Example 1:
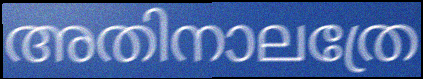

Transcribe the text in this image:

അതിനാലത്രേ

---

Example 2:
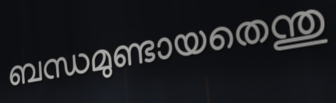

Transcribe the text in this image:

ബന്ധമുണ്ടായതെന്തു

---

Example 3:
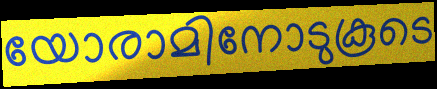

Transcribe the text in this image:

യോരാമിനോടുകൂടെ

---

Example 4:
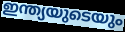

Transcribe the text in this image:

ഇന്ത്യയുടെയും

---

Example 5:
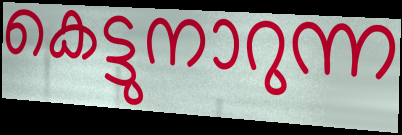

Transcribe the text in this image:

കെട്ടുനാറുന്ന